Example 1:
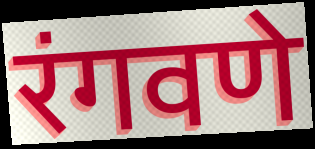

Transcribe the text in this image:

रंगवणे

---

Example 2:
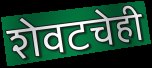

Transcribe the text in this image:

शेवटचेही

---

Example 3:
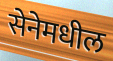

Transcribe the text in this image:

सेनेमधील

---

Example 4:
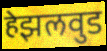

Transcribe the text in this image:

हेझलवुड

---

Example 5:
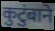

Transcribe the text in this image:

कुटुंबाने